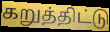
கறுத்திட்டு